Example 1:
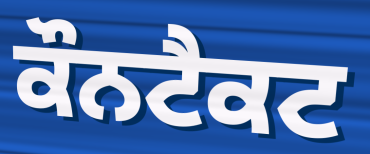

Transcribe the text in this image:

ਕੌਨਟੈਕਟ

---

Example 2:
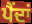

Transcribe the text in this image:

ਪੈਂਦਾਂ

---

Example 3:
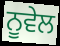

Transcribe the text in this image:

ਨੂਵੇਲ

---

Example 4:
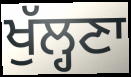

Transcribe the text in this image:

ਖੁੱਲ੍ਹਣਾ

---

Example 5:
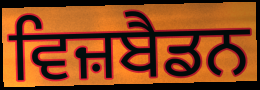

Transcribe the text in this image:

ਵਿਜ਼ਬੈਡਨ